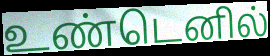
உண்டெனில்